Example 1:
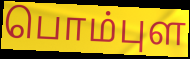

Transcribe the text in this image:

பொம்புள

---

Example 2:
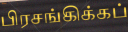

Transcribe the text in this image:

பிரசங்கிக்கப்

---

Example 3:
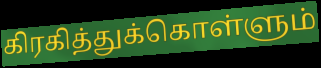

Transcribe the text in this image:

கிரகித்துக்கொள்ளும்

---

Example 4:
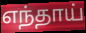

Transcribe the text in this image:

எந்தாய்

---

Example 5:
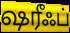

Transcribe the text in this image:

ஷரீஃப்